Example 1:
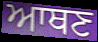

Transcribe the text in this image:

ਆਥਣ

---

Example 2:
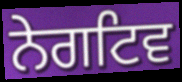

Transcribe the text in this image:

ਨੇਗਟਿਵ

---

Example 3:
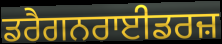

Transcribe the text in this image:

ਡਰੈਗਨਰਾਈਡਰਜ਼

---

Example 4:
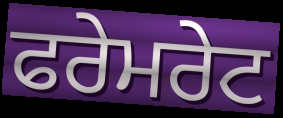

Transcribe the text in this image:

ਫਰੇਮਰੇਟ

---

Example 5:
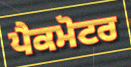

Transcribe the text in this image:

ਪੈਕਮੋਟਰ